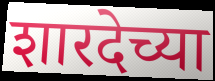
शारदेच्या